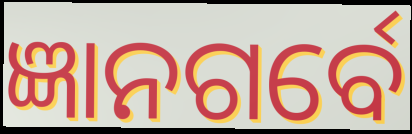
ଜ୍ଞାନଗର୍ବେ